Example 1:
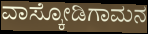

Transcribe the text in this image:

ವಾಸ್ಕೋಡಿಗಾಮನ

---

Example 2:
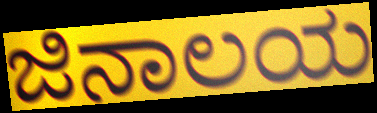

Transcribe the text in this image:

ಜಿನಾಲಯ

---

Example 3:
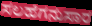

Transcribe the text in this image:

ಸಲಹೆಗನುಸಾರ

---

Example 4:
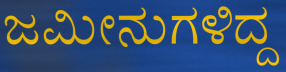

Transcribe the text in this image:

ಜಮೀನುಗಳಿದ್ದ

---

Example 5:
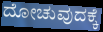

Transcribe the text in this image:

ದೋಚುವುದಕ್ಕೆ